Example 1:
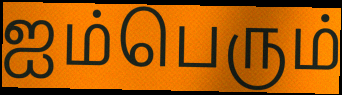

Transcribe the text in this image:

ஐம்பெரும்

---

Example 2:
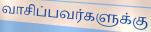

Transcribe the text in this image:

வாசிப்பவர்களுக்கு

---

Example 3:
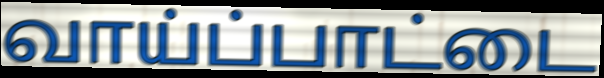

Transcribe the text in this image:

வாய்ப்பாட்டை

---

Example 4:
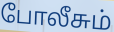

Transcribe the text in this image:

போலீசும்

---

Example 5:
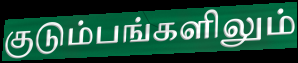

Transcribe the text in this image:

குடும்பங்களிலும்